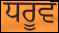
ਧਰੂਵ